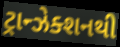
ટ્રાન્ઝેક્શનથી